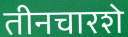
तीनचारशे